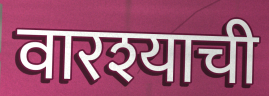
वारश्याची